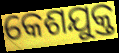
କେଶଯୁକ୍ତ